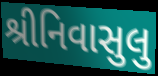
શ્રીનિવાસુલુ